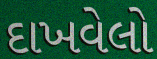
દાખવેલો